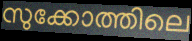
സുക്കോത്തിലെ